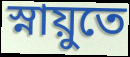
স্নায়ুতে